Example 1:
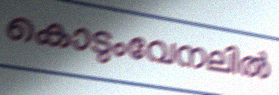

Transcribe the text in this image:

കൊടുംവേനലിൽ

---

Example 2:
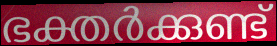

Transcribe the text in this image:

ഭക്തർക്കുണ്ട്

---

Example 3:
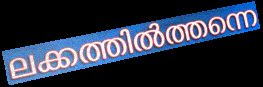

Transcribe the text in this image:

ലക്കത്തിൽത്തന്നെ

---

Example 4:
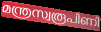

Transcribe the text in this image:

മന്ത്രസ്വരൂപിണി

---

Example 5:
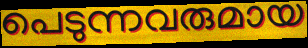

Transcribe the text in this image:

പെടുന്നവരുമായ